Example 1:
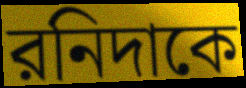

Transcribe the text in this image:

রনিদাকে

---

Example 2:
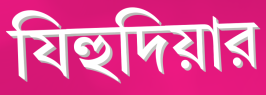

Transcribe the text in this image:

যিহুদিয়ার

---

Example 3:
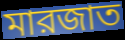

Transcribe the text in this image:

মারজাত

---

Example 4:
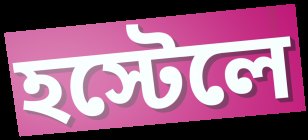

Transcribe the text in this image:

হস্টেলে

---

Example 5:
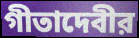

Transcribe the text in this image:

গীতাদেবীর